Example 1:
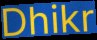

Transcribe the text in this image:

Dhikr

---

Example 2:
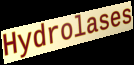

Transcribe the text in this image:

Hydrolases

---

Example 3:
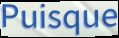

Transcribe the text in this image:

Puisque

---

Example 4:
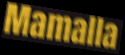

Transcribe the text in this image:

Mamalla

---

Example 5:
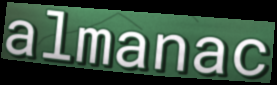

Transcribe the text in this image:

almanac